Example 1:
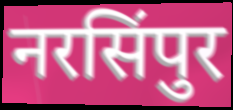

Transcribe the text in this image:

नरसिंपुर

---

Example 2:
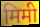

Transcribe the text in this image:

मिमी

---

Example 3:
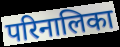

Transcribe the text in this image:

परिनालिका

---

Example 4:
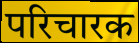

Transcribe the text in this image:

परिचारक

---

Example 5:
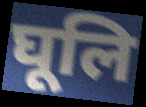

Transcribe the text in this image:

घूलि